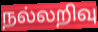
நல்லறிவு